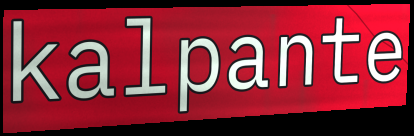
kalpante